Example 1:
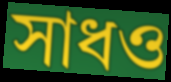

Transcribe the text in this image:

সাধও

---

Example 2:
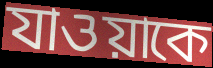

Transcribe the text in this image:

যাওয়াকে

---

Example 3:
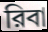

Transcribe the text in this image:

রিবা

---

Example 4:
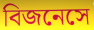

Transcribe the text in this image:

বিজনেসে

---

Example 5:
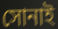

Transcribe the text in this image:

সোনাই